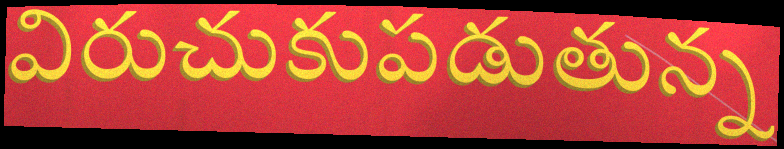
విరుచుకుపడుతున్న